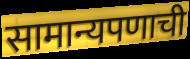
सामान्यपणाची